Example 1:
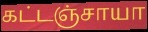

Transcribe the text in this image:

கட்டஞ்சாயா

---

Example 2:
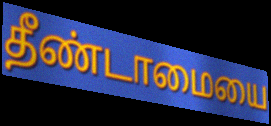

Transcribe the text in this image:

தீண்டாமையை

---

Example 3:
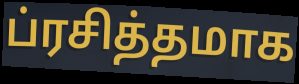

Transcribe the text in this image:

ப்ரசித்தமாக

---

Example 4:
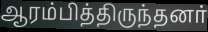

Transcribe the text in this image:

ஆரம்பித்திருந்தனர்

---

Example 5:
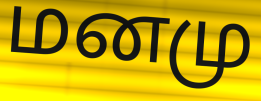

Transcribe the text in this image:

மனமு